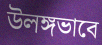
উলঙ্গভাবে